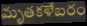
మృతకళేబరం